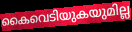
കൈവെടിയുകയുമില്ല